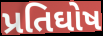
પ્રતિઘોષ